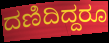
ದಣಿದಿದ್ದರೂ